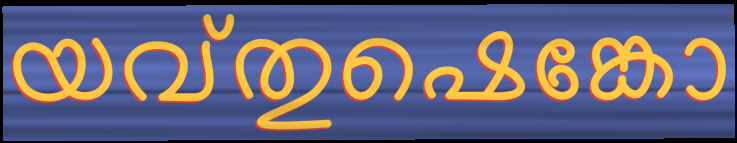
യവ്തുഷെങ്കോ